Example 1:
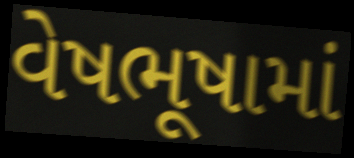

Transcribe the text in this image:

વેષભૂષામાં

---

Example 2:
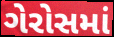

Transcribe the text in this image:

ગેરોસમાં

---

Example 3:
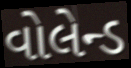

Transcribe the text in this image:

વોલેન્ડ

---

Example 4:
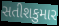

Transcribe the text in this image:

સતીશકુમાર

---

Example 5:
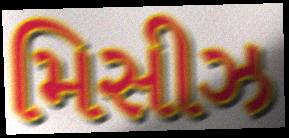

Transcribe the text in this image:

મિસીઝ